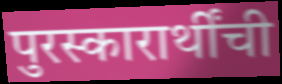
पुरस्कारार्थींची